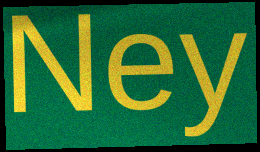
Ney